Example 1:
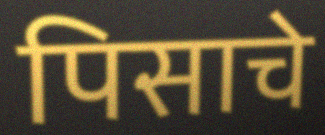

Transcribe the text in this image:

पिसाचे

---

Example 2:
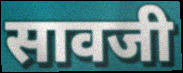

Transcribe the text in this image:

सावजी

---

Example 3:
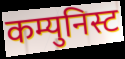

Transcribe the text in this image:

कम्युनिस्ट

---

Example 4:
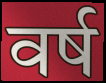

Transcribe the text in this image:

वर्ष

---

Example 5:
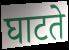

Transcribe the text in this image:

घाटते